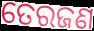
ତେରଜଣ